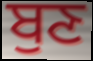
ਬੁਣ